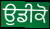
ਉਡੀਕੋ